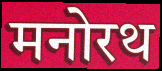
मनोरथ